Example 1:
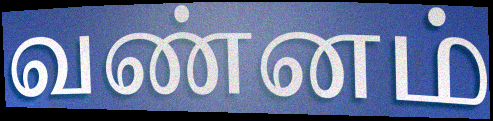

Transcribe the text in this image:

வண்னம்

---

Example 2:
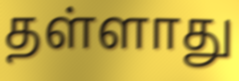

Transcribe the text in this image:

தள்ளாது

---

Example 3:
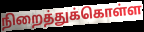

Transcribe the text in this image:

நிறைத்துக்கொள்ள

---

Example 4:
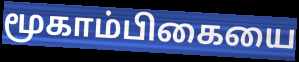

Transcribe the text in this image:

மூகாம்பிகையை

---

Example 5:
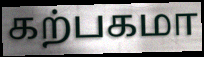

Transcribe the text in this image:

கற்பகமா